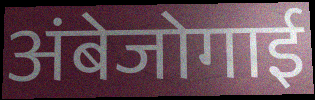
अंबेजोगाई